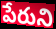
పేరుని